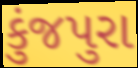
કુંજપુરા